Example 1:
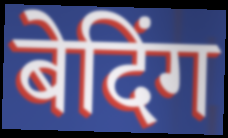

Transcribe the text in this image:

बेदिंग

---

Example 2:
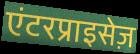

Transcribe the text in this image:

एंटरप्राइसेज़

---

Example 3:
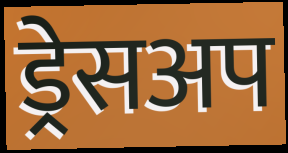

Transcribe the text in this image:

ड्रेसअप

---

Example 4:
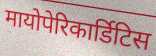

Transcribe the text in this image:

मायोपेरिकार्डिटिस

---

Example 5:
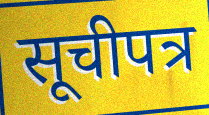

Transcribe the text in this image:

सूचीपत्र